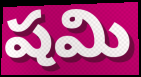
షమి